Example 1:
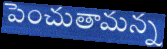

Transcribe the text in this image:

పెంచుతామన్న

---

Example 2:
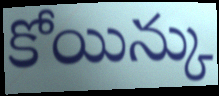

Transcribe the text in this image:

కోయిన్కు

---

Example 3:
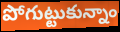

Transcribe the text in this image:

పోగుట్టుకున్నాం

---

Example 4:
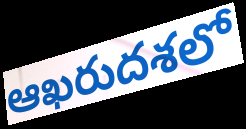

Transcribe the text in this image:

ఆఖరుదశలో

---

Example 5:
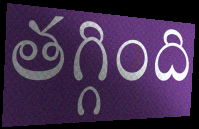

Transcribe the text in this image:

తగ్గింది